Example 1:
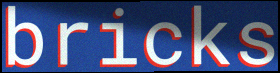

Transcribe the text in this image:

bricks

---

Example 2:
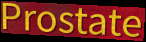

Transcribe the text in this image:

Prostate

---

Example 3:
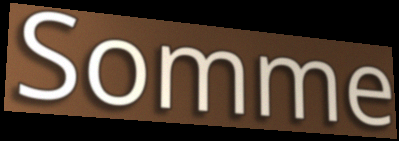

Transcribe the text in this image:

Somme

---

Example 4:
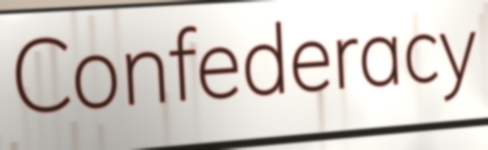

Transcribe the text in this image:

Confederacy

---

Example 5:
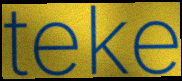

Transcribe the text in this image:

teke